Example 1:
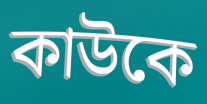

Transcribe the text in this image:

কাউকে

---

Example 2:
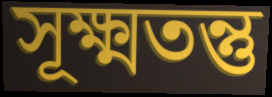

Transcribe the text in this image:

সূক্ষ্মতন্তু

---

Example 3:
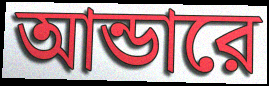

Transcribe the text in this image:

আন্ডারে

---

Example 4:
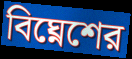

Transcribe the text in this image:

বিঘ্নেশের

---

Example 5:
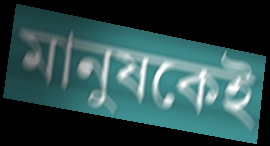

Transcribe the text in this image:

মানুষকেই